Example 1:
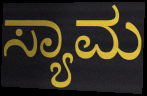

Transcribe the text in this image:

ಸ್ಯಾಮ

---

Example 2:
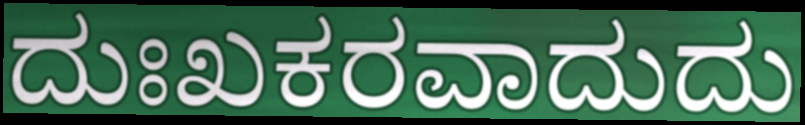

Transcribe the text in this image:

ದುಃಖಕರವಾದುದು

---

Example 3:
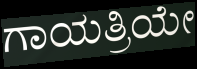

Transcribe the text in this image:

ಗಾಯತ್ರಿಯೇ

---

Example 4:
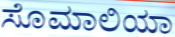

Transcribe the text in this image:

ಸೊಮಾಲಿಯಾ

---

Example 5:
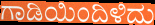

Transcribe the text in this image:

ಗಾಡಿಯಿಂದಿಳಿದು